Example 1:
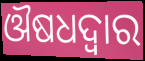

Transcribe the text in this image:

ଔଷଧଦ୍ୱାର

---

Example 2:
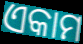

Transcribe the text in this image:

ଏକାମ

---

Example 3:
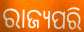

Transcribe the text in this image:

ରାଜ୍ୟପରି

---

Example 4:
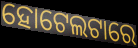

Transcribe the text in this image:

ହୋଟେଲଟାରେ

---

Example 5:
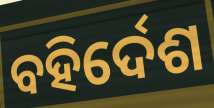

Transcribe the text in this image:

ବହିର୍ଦେଶ